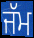
ਜੱਮ